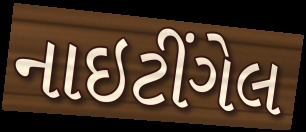
નાઇટીંગેલ